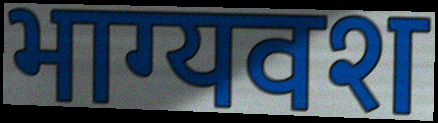
भाग्यवश